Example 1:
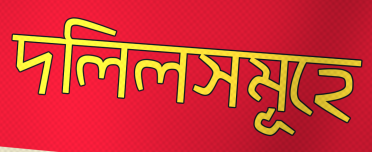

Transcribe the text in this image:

দলিলসমূহে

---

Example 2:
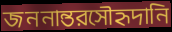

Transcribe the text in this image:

জননান্তরসৌহৃদানি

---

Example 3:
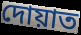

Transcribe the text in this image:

দোয়াত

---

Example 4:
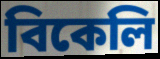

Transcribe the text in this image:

বিকেলি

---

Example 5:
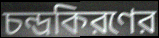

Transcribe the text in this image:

চন্দ্রকিরণের